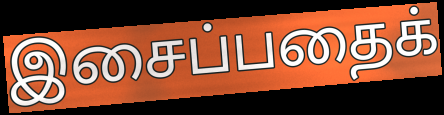
இசைப்பதைக்